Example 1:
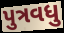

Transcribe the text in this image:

પુત્રવધુ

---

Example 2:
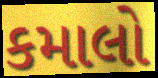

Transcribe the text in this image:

કમાલો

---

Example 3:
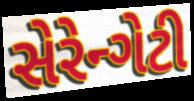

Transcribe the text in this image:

સેરેન્ગેટી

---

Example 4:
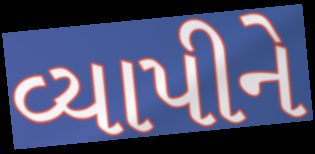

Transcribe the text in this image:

વ્યાપીને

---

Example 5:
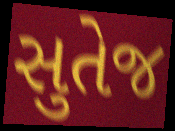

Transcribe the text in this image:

સુતેજ